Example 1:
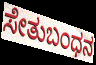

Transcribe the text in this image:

ಸೇತುಬಂಧನ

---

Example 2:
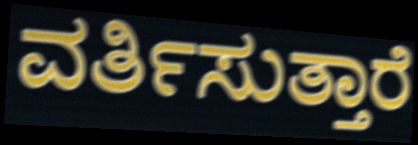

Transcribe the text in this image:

ವರ್ತಿಸುತ್ತಾರೆ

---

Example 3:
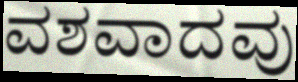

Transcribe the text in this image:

ವಶವಾದವು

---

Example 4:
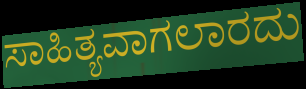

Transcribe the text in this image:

ಸಾಹಿತ್ಯವಾಗಲಾರದು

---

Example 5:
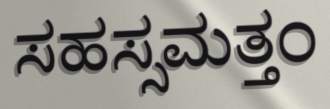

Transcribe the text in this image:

ಸಹಸ್ಸಮತ್ತಂ